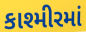
કાશ્મીરમાં